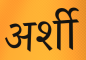
अर्शी